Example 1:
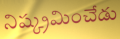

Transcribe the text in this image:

నిష్క్రమించేడు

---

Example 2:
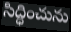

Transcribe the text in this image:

సిద్ధించును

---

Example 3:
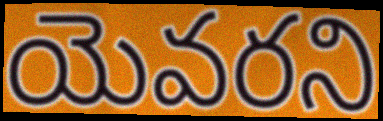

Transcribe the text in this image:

యెవరని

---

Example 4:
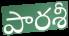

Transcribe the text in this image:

పారశీ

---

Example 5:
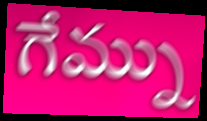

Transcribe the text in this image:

గేమ్ను